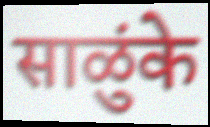
साळुंके